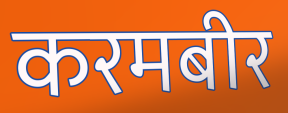
करमबीर